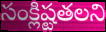
సంక్లిష్టతలని